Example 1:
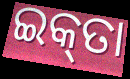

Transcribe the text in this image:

ଇକ୍‌ତା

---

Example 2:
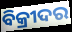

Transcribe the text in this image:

ବିକ୍ରୀଦର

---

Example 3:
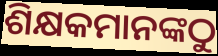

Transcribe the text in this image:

ଶିକ୍ଷକମାନଙ୍କଠୁ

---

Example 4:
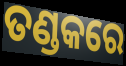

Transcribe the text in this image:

ତଣ୍ଡକରେ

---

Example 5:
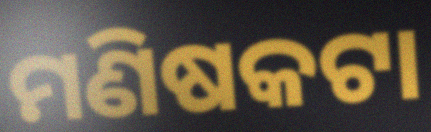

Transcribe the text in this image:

ମଣିଷକଟା